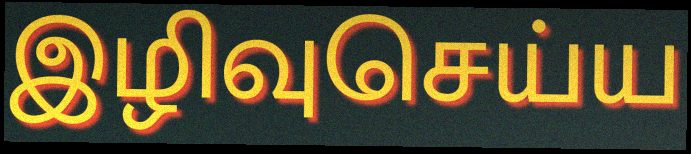
இழிவுசெய்ய